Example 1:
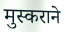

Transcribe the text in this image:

मुस्कराने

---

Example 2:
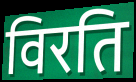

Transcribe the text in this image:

विरति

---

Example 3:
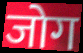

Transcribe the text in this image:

जोग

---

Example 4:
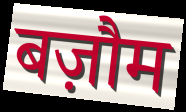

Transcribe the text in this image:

बज़ौम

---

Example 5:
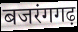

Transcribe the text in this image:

बजरंगगढ़